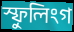
স্ফুলিংগ